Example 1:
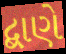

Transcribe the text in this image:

દ્બાણે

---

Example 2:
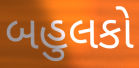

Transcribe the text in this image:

બહુલકો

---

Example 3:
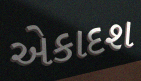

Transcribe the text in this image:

એકાદશ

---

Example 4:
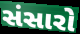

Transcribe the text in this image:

સંસારો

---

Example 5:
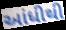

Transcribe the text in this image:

આંધીથી